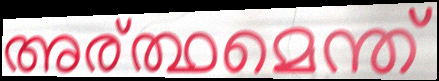
അര്ത്ഥമെന്ത്